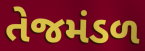
તેજમંડળ